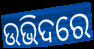
ଉଭିଦରେ